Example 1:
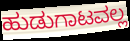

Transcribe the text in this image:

ಹುಡುಗಾಟವಲ್ಲ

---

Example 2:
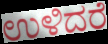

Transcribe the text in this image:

ಉಳಿದರೆ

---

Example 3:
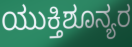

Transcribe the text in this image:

ಯುಕ್ತಿಶೂನ್ಯರ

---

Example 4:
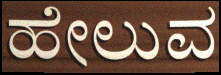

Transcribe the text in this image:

ಹೇಲುವ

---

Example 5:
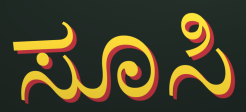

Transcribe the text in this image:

ಸೂಸಿ